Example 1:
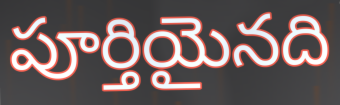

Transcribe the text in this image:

పూర్తియైనది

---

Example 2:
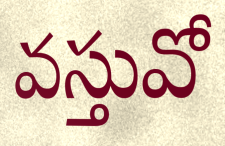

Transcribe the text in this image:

వస్తువో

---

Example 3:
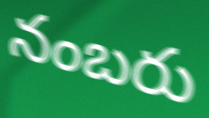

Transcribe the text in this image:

నంబరు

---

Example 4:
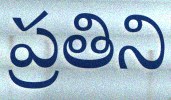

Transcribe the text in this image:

ప్రతిని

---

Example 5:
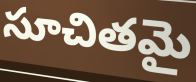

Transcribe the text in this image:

సూచితమై